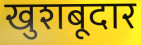
खुशबूदार